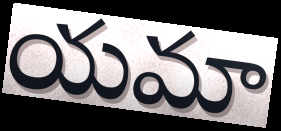
యమా